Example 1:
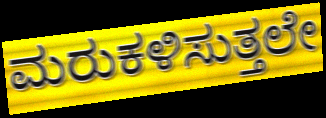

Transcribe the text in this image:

ಮರುಕಳಿಸುತ್ತಲೇ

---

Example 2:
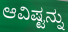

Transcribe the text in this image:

ಆವಿಷ್ಟನ್ನು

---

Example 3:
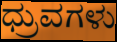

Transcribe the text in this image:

ಧ್ರುವಗಳು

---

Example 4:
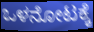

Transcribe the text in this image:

ಒಳನೋಟಕ್ಕೆ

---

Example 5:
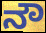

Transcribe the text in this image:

ನೌ